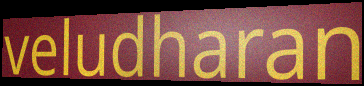
veludharan